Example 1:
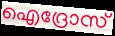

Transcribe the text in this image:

ഐദ്രോസ്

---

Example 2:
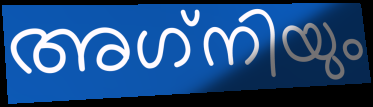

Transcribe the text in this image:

അഗ്‌നിയും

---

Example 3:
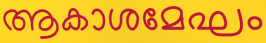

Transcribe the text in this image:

ആകാശമേഘം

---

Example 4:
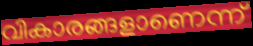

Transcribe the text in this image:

വികാരങ്ങളാണെന്ന്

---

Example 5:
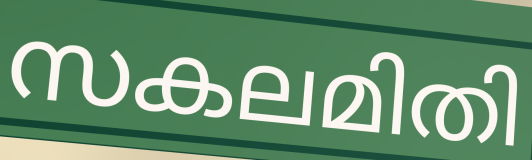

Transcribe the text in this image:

സകലമിതി